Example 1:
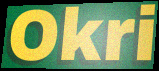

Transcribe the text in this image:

Okri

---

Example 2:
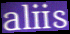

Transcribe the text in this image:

aliis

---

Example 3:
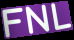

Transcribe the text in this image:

FNL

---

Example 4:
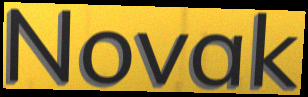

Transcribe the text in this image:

Novak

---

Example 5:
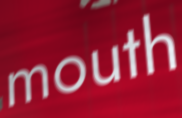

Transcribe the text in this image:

mouth